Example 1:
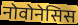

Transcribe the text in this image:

नोवोनेसिस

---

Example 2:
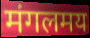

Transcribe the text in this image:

मंगलमय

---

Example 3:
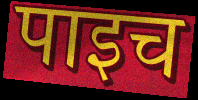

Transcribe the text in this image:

पाइच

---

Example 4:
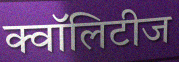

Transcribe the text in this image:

क्वॉलिटीज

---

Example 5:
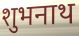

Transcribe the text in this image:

शुभनाथ